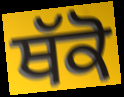
ਥੱਕੋ